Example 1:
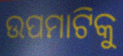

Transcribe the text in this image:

ଉପମାଟିକୁ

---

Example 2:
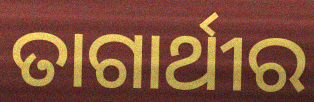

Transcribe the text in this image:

ତାଗାର୍ଥୀର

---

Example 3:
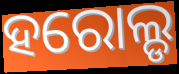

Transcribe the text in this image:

ହରୋଲ୍ଡ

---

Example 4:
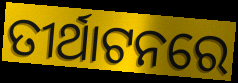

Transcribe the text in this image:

ତୀର୍ଥାଟନରେ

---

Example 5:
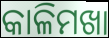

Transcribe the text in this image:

କାଳିମଖା